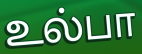
உல்பா